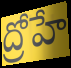
ద్రోహే